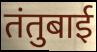
तंतुबाई